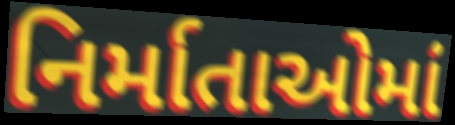
નિર્માતાઓમાં